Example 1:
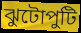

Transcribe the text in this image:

ঝুটোপুটি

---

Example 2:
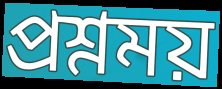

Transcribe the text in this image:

প্রশ্নময়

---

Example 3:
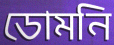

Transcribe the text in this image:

ডোমনি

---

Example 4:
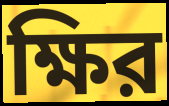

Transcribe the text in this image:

ক্ষির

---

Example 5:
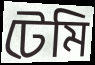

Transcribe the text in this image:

টেমি